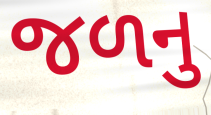
જળનુ